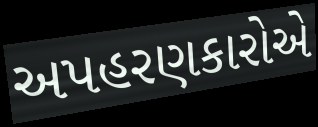
અપહરણકારોએ